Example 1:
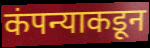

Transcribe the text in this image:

कंपन्याकडून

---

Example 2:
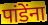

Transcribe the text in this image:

पांडेंना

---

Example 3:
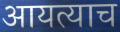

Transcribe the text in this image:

आयत्याच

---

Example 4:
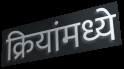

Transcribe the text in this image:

क्रियांमध्ये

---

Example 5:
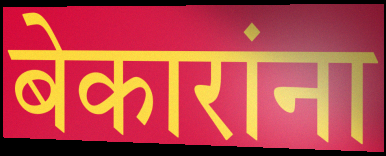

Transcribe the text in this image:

बेकारांना